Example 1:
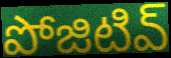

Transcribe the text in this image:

పోజిటివ్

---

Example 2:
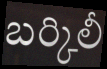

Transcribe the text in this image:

బర్కిలీ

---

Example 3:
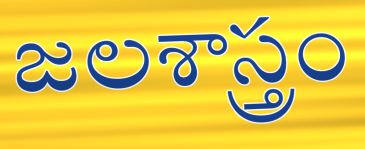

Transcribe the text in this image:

జలశాస్త్రం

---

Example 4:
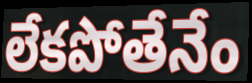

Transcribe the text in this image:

లేకపోతేనేం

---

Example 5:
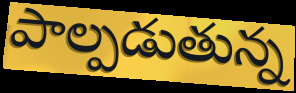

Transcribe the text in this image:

పాల్పడుతున్న